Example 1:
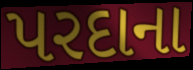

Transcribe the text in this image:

પરદાના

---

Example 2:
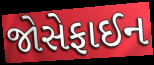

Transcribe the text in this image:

જોસેફાઈન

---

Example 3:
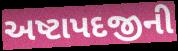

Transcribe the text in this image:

અષ્ટાપદજીની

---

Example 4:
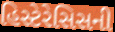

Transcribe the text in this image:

હિસ્ટેરેસિસની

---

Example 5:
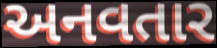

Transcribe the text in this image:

અનવતાર